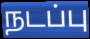
நடப்பு